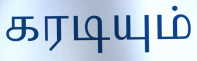
கரடியும்